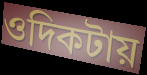
ওদিকটায়